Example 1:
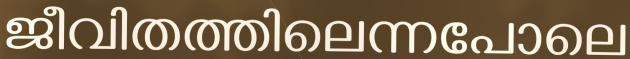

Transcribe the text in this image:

ജീവിതത്തിലെന്നപോലെ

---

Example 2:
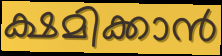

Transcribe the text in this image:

ക്ഷമിക്കാൻ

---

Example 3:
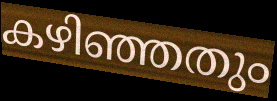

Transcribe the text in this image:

കഴിഞ്ഞതും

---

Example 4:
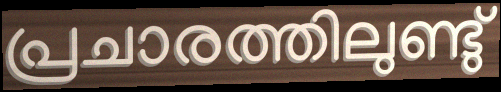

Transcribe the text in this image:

പ്രചാരത്തിലുണ്ടു്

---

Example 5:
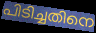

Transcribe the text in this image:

പിടിച്ചതിനെ